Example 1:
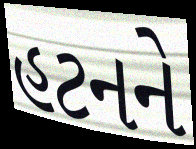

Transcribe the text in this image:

હટનને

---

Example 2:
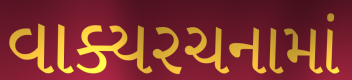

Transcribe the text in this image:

વાક્યરચનામાં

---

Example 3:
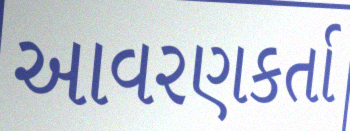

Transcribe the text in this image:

આવરણકર્તા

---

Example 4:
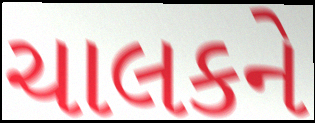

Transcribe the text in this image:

ચાલકને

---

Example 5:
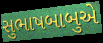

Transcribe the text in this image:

સુભાષબાબુએ